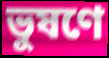
ভুষণে